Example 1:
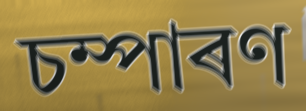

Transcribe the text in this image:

চম্পাৰণ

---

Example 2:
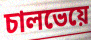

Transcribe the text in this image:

চালভেয়ে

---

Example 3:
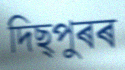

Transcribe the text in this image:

দিছ্পুৰৰ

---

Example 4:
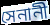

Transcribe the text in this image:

সেনানী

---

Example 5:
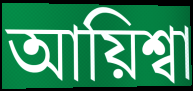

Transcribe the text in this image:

আয়িশ্বা